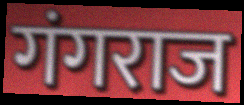
गंगराज